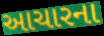
આચારના